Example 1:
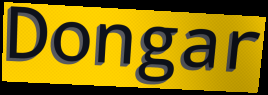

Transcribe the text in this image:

Dongar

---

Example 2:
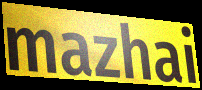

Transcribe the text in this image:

mazhai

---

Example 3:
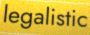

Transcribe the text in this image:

legalistic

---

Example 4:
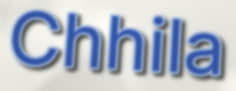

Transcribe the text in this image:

Chhila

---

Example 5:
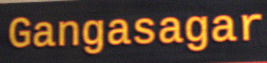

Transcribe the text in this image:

Gangasagar